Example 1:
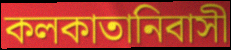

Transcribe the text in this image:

কলকাতানিবাসী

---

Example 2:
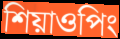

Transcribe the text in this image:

শিয়াওপিং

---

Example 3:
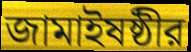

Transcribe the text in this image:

জামাইষষ্ঠীর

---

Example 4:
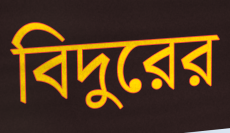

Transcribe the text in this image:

বিদুরের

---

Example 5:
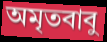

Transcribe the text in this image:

অমৃতবাবু